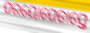
ପରୟୋପେତାସ୍ତେ